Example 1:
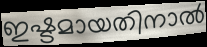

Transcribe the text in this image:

ഇഷ്ടമായതിനാൽ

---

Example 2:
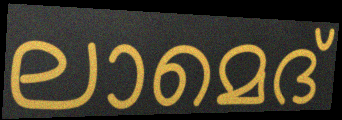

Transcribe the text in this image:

ലാമെദ്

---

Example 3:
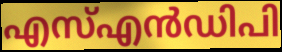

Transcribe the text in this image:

എസ്എൻഡിപി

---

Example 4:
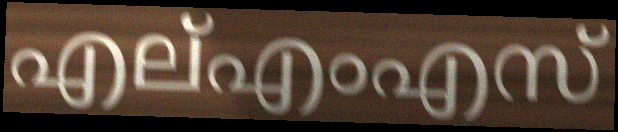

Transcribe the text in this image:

എല്എംഎസ്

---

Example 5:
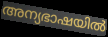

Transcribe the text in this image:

അന്യഭാഷയിൽ